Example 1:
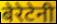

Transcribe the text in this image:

बेरेटेनी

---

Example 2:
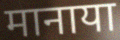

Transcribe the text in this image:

मानाया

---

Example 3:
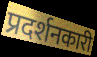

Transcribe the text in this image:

प्रदर्शनकारी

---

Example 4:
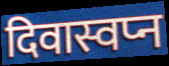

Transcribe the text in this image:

दिवास्‍वप्‍न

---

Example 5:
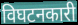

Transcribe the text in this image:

विघटनकारी